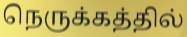
நெருக்கத்தில்